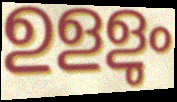
ഉളളും